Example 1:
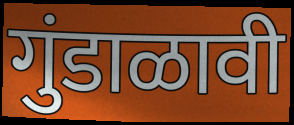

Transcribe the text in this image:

गुंडाळावी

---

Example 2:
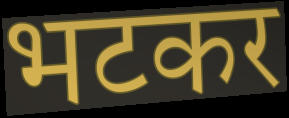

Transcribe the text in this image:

भटकर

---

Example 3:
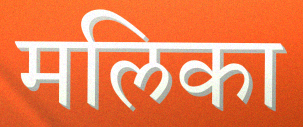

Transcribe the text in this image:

मलिका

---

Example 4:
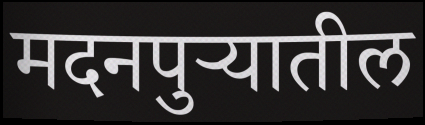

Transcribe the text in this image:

मदनपुऱ्यातील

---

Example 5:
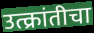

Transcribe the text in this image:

उत्क्रांतीचा